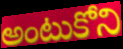
అంటుకోని